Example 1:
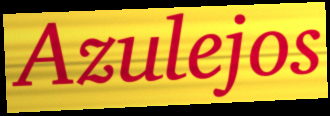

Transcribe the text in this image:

Azulejos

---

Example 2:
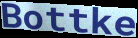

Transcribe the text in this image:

Bottke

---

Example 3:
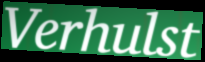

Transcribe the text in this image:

Verhulst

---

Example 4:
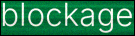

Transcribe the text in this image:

blockage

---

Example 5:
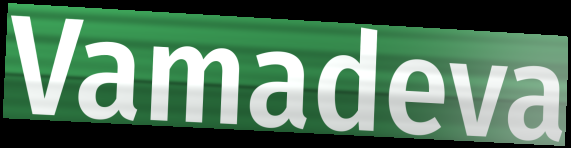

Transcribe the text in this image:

Vamadeva